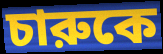
চারুকে